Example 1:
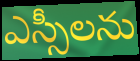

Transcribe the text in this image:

ఎస్సీలను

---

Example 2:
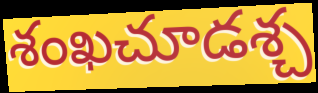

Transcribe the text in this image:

శంఖచూడశ్చ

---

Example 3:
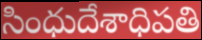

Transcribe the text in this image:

సింధుదేశాధిపతి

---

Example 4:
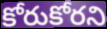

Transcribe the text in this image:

కోరుకోరని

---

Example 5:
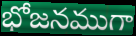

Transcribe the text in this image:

భోజనముగా